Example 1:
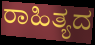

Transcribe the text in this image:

ರಾಹಿತ್ಯದ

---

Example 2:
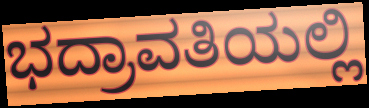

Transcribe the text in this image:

ಭದ್ರಾವತಿಯಲ್ಲಿ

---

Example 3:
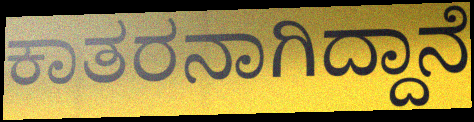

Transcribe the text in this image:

ಕಾತರನಾಗಿದ್ದಾನೆ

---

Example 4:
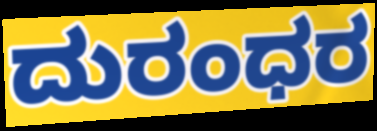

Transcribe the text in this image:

ದುರಂಧರ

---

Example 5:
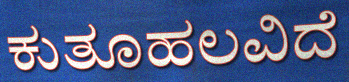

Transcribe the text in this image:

ಕುತೂಹಲವಿದೆ